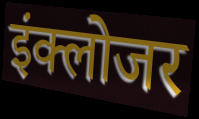
इंक्लोजर